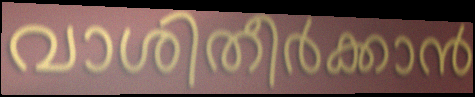
വാശിതീർക്കാൻ